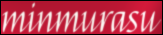
minmurasu